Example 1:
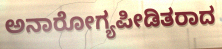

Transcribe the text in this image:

ಅನಾರೋಗ್ಯಪೀಡಿತರಾದ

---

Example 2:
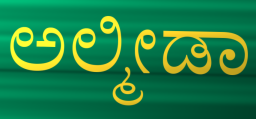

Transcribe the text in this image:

ಅಲ್ಮೀಡಾ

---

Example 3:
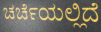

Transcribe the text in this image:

ಚರ್ಚೆಯಲ್ಲಿದೆ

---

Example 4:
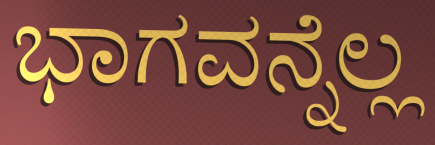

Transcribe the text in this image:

ಭಾಗವನ್ನೆಲ್ಲ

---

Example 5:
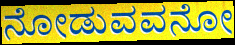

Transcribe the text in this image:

ನೋಡುವವನೋ